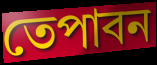
তেপাবন